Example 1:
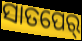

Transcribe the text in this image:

ସାତପେର୍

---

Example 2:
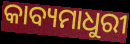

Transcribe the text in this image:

କାବ୍ୟମାଧୁରୀ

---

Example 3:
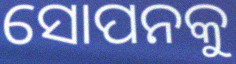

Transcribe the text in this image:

ସୋପନକୁ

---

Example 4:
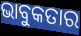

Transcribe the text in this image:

ଭାବୁକତାର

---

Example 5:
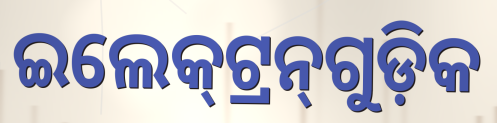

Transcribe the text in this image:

ଇଲେକ୍‍ଟ୍ରନ୍‍ଗୁଡ଼ିକ